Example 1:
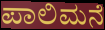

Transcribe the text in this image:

ಪಾಲಿಮನೆ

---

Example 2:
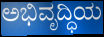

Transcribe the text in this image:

ಅಭಿವೃದ್ಧಿಯ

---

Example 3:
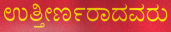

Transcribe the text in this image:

ಉತ್ತೀರ್ಣರಾದವರು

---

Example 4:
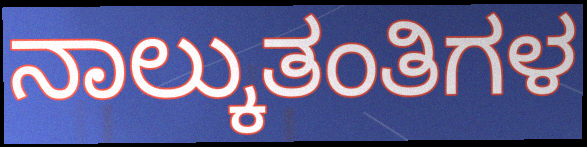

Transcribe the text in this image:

ನಾಲ್ಕುತಂತಿಗಳ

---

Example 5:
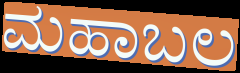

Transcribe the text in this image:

ಮಹಾಬಲ